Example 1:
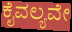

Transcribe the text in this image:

ಕೈವಲ್ಯವೇ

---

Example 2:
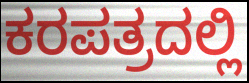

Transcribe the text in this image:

ಕರಪತ್ರದಲ್ಲಿ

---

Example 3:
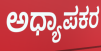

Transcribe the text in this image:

ಅಧ್ಯಾಪಕರ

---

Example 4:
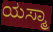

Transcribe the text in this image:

ಯಸ್ಮಾ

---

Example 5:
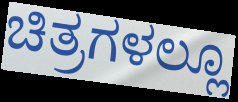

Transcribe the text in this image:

ಚಿತ್ರಗಳಲ್ಲೂ